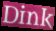
Dink